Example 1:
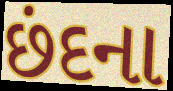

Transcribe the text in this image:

છંદના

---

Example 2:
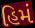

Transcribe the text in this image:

હિમં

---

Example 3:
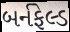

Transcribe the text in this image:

બર્નફેલ્ડ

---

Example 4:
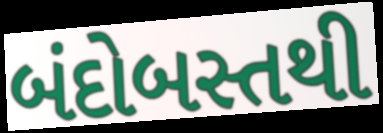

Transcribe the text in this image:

બંદોબસ્તથી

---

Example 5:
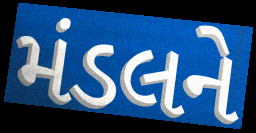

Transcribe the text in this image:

મંડલને